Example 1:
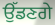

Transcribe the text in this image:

ਉੱਡਣਗੇ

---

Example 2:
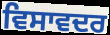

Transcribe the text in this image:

ਵਿਸਾਵਦਰ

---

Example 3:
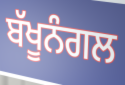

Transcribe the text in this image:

ਬੱਖੂਨੰਗਲ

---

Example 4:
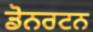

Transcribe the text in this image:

ਡੋਨਰਟਨ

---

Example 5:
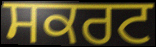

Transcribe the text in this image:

ਸਕਰਟ